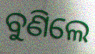
ବୁଣିଲେ